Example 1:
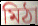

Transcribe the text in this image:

মিঠা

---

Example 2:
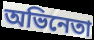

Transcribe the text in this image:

অভিনেতা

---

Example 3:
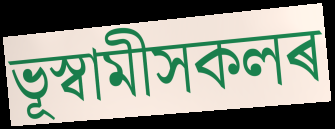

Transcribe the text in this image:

ভূস্বামীসকলৰ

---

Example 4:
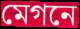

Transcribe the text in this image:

মেগনে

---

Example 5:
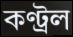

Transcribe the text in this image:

কণ্ট্ৰল